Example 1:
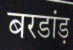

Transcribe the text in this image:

बरडांड़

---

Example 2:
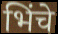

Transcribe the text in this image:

भिंचे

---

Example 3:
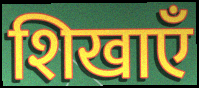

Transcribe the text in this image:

शिखाएँ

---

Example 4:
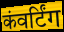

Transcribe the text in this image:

कंवर्टिंग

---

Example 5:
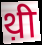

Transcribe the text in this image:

थ़ी